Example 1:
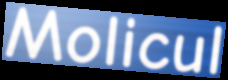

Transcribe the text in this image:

Molicul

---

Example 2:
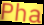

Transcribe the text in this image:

Pha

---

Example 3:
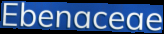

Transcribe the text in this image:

Ebenaceae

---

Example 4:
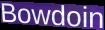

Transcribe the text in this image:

Bowdoin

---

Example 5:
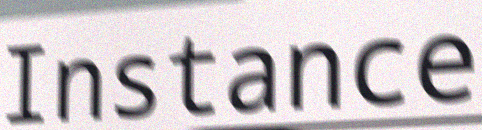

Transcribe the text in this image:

Instance